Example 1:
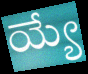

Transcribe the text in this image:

య్యే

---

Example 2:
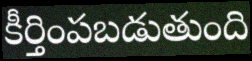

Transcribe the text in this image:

కీర్తింపబడుతుంది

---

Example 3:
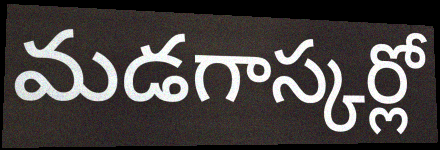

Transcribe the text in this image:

మడగాస్కర్లో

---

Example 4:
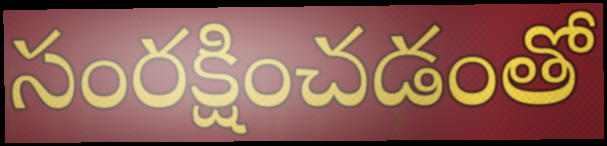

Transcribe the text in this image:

సంరక్షించడంతో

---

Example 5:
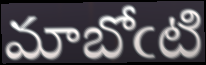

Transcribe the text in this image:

మాబోఁటి